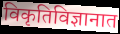
विकृतिविज्ञानात